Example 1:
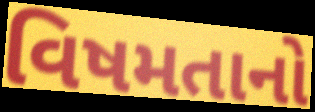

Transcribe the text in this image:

વિષમતાનો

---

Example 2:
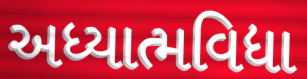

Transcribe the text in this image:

અધ્યાત્મવિદ્યા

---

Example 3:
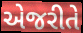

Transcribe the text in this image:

એજરીતે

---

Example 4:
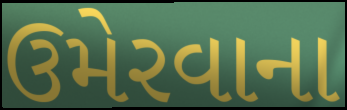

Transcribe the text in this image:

ઉમેરવાના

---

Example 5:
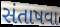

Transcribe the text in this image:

સંતાષવા